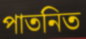
পাতনিত